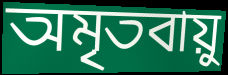
অমৃতবায়ু